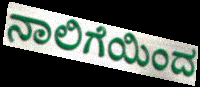
ನಾಲಿಗೆಯಿಂದ